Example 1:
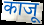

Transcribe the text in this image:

काजू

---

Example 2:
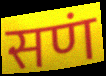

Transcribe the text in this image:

सणं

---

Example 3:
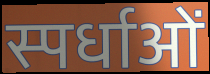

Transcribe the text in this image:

स्पर्धाओं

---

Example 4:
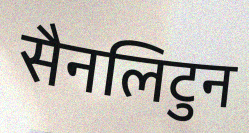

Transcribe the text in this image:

सैनलिटुन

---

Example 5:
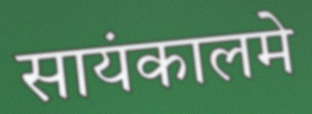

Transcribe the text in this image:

सायंकालमे